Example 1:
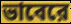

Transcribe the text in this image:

ভাবেরে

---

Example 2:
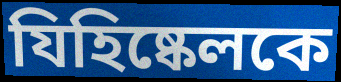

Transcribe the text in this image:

যিহিষ্কেলকে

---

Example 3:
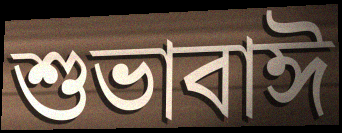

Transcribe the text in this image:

শুভাবাঈ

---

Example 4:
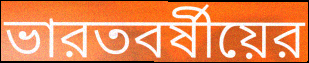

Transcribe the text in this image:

ভারতবর্ষীয়ের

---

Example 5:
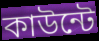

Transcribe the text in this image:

কাউন্টে